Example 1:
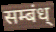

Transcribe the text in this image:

सम्बंध्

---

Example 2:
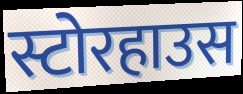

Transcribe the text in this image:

स्टोरहाउस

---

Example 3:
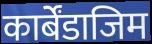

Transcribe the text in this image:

कार्बेंडाजिम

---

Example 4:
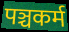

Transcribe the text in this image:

पञ्चकर्म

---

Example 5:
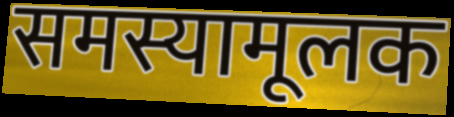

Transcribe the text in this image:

समस्यामूलक